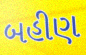
બહીણ